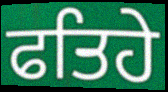
ਫਤਿਹੇ